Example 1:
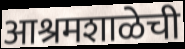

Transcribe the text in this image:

आश्रमशाळेची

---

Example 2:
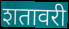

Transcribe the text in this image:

शतावरी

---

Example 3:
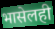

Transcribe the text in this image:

भासेलही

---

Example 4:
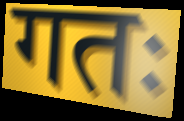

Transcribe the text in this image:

गतः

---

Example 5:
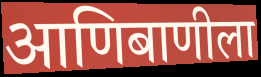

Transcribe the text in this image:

आणिबाणीला